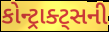
કોન્ટ્રાક્ટ્સની